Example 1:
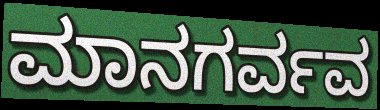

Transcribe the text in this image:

ಮಾನಗರ್ವವ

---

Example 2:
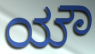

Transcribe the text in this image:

ಯೌ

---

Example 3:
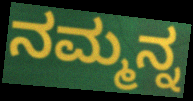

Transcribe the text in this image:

ನಮ್ಮನ್ನ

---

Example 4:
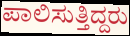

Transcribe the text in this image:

ಪಾಲಿಸುತ್ತಿದ್ದರು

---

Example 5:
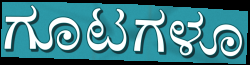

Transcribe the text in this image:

ಗೂಟಗಳೂ